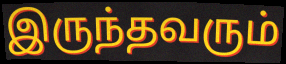
இருந்தவரும்